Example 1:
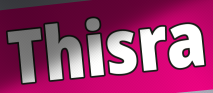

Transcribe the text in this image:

Thisra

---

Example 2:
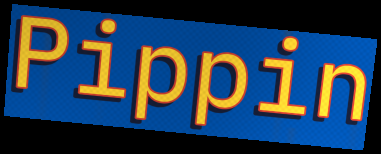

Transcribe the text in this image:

Pippin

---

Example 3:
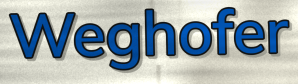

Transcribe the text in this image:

Weghofer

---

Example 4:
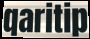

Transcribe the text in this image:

qaritip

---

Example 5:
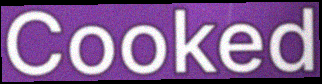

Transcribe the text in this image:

Cooked